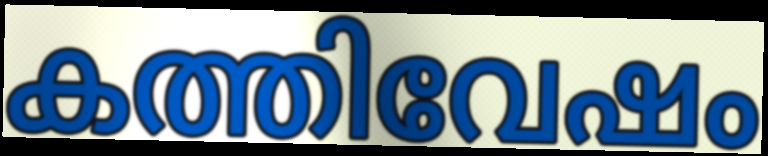
കത്തിവേഷം